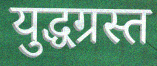
युद्धग्रस्त